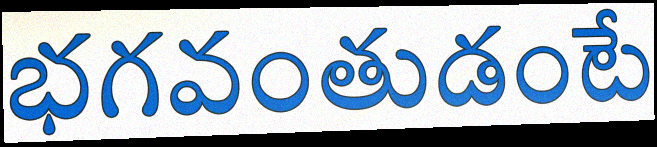
భగవంతుడంటే